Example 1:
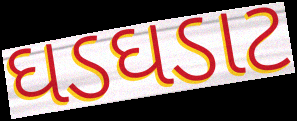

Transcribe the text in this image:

ઘડઘડાટ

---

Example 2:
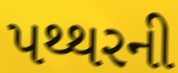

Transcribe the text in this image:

પથ્થરની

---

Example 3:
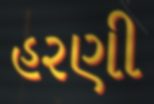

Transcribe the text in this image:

હરણી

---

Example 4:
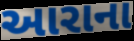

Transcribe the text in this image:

આરાના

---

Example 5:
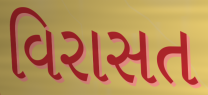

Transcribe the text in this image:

વિરાસત